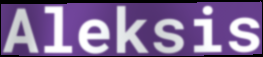
Aleksis